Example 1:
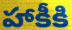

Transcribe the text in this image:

హాకీకి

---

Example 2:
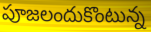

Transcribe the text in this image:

పూజలందుకొంటున్న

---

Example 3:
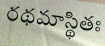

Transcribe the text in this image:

రథమాస్థితః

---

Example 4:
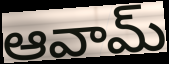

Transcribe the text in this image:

ఆవామ్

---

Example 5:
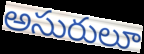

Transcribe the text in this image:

అసురులూ